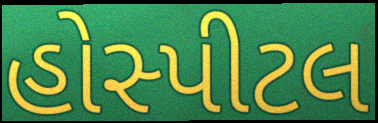
હોસ્પીટલ